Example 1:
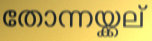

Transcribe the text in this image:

തോന്നയ്ക്കല്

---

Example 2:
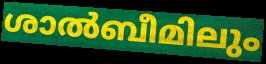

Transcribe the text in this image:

ശാൽബീമിലും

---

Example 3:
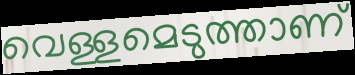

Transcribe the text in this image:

വെള്ളമെടുത്താണ്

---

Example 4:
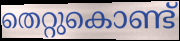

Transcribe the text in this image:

തെറ്റുകൊണ്ട്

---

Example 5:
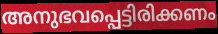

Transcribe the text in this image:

അനുഭവപ്പെട്ടിരിക്കണം